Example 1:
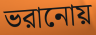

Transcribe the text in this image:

ভরানোয়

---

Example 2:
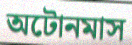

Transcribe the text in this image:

অটোনমাস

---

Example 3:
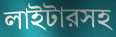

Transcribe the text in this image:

লাইটারসহ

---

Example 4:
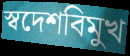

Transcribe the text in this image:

স্বদেশবিমুখ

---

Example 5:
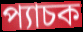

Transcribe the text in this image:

প্যাচক